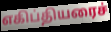
எகிப்தியரைச்